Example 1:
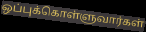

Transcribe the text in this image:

ஒப்புக்கொள்ளுவார்கள்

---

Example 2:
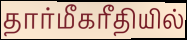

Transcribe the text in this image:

தார்மீகரீதியில்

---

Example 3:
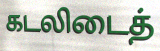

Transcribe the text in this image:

கடலிடைத்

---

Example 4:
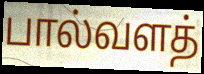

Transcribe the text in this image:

பால்வளத்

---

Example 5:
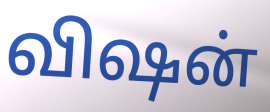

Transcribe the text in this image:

விஷன்